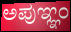
ಅಪುಞ್ಞಂ